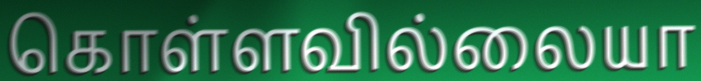
கொள்ளவில்லையா